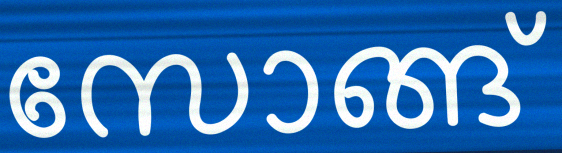
സോങ്ങ്